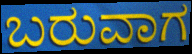
ಬರುವಾಗ